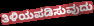
ತಿಳಿಯಪಡಿಸುವುದು